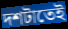
দশটাতেই